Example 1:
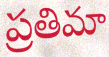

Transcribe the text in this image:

ప్రతిమా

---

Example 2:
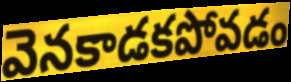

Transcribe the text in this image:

వెనకాడకపోవడం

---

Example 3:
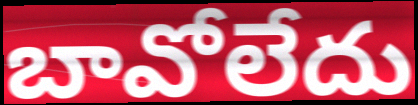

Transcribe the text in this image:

బావోలేదు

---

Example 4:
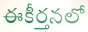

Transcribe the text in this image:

ఈకీర్తనలో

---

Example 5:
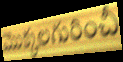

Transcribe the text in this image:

మొక్కలగురించీ